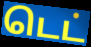
டெட்